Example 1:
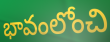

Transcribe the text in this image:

భావంలోంచి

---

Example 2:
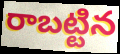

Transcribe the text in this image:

రాబట్టిన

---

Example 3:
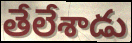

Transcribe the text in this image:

తేలేశాడు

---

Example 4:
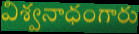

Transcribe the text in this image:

విశ్వనాధంగారు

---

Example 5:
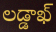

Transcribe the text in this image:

లడ్డాఖ్